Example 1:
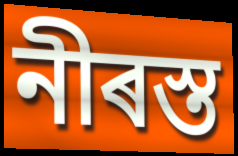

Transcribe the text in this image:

নীৰস্ত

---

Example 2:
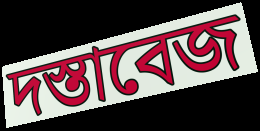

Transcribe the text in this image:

দস্তাবেজ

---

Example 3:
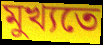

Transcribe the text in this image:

মুখ্যতে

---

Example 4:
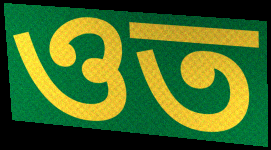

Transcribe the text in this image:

ওত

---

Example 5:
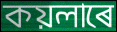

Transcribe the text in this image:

কয়লাৰে